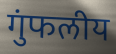
गुंफलीय